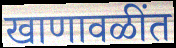
खाणावळींत